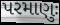
પરમાણુઃ